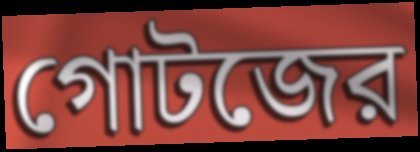
গোটজের